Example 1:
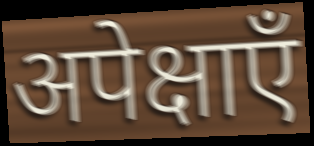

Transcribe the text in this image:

अपेक्षाएँ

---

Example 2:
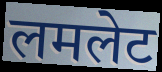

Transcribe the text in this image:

लमलेट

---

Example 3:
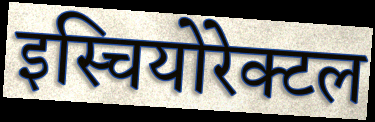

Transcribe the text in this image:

इस्चियोरेक्टल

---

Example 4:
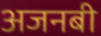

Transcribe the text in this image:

अजनबी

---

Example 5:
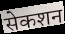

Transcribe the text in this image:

सेकशन